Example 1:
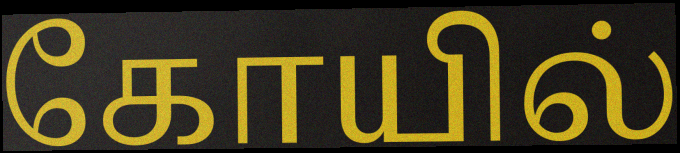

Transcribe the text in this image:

கோயில்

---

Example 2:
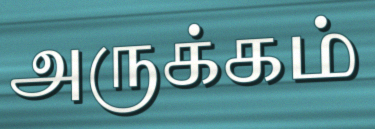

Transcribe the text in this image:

அருக்கம்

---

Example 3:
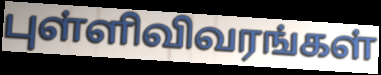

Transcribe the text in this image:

புள்ளிவிவரங்கள்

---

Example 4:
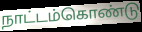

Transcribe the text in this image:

நாட்டம்கொண்டு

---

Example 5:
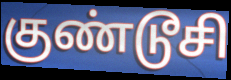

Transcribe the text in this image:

குண்டூசி